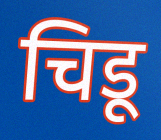
चिडू